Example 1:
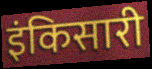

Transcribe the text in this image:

इंकिसारी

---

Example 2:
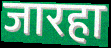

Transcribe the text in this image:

जारहा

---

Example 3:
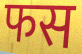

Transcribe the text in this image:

फस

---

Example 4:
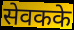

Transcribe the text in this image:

सेवकके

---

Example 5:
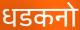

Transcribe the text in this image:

धडकनो